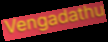
Vengadathu